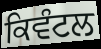
ਕਿਵੰਟਲ